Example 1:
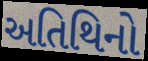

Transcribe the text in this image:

અતિથિનો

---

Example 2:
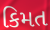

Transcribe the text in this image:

કિમત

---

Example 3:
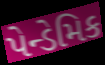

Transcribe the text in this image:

પેન્ડેમિક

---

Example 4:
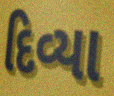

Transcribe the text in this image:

દિવ્યા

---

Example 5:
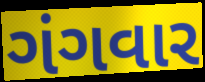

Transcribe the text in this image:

ગંગવાર